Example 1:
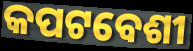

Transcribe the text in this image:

କପଟବେଶୀ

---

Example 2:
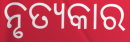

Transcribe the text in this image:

ନୃତ୍ୟକାର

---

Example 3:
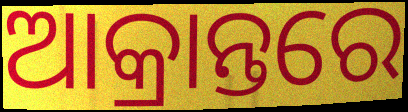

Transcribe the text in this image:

ଆକ୍ରାନ୍ତରେ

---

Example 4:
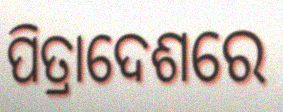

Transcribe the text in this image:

ପିତ୍ରାଦେଶରେ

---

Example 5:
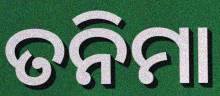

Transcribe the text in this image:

ତନିମା